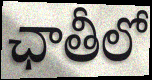
ఛాతీలో